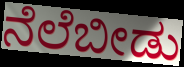
ನೆಲೆಬೀಡು